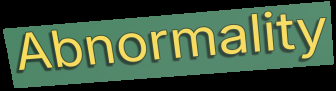
Abnormality